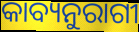
କାବ୍ୟନୁରାଗୀ